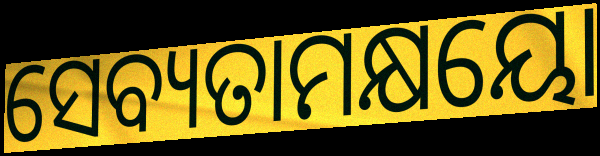
ସେବ୍ୟତାମକ୍ଷୟୋ